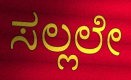
ಸಲ್ಲಲೇ